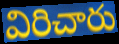
విరిచారు